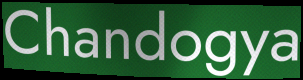
Chandogya